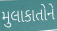
મુલાકાતોને